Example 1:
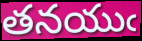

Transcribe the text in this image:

తనయుఁ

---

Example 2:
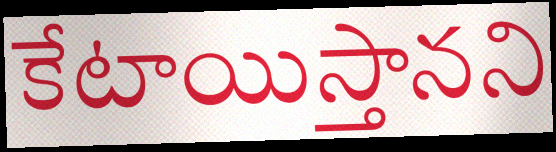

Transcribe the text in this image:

కేటాయిస్తానని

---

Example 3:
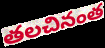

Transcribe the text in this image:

తలచినంత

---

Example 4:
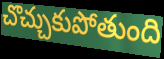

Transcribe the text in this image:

చొచ్చుకుపోతుంది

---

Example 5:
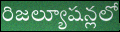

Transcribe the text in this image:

రిజల్యూషన్లలో